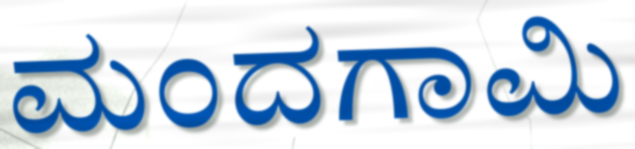
ಮಂದಗಾಮಿ